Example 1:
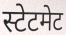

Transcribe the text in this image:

स्टेटमेट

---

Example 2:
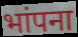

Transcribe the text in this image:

भांपना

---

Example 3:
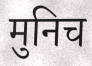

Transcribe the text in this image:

मुनिच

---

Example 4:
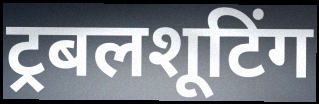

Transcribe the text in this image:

ट्रबलशूटिंग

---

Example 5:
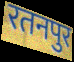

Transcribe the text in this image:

रतनपुर